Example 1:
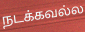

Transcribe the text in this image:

நடக்கவல்ல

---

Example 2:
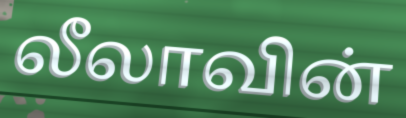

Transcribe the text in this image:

லீலாவின்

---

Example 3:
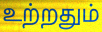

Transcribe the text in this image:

உற்றதும்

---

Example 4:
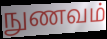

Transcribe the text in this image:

நுணவம்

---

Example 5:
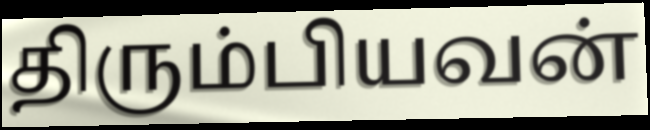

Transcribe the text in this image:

திரும்பியவன்